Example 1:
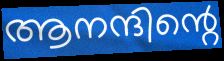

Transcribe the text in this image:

ആനന്ദിന്റെ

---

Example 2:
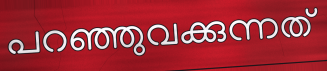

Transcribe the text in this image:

പറഞ്ഞുവക്കുന്നത്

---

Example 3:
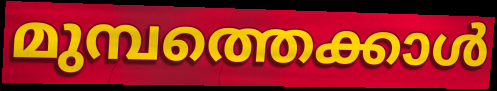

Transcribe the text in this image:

മുമ്പത്തെക്കാൾ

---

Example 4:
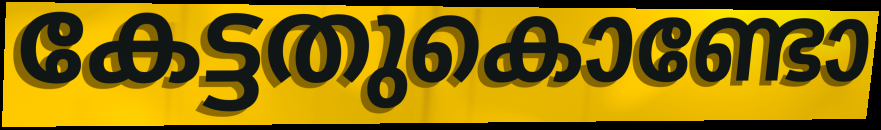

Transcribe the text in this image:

കേട്ടതുകൊണ്ടോ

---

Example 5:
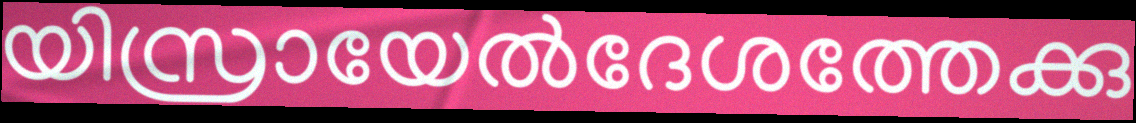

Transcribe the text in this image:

യിസ്രായേൽദേശത്തേക്കു